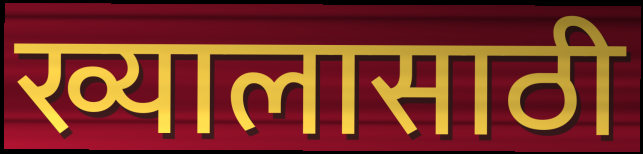
ख्यालासाठी